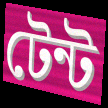
টেন্ট